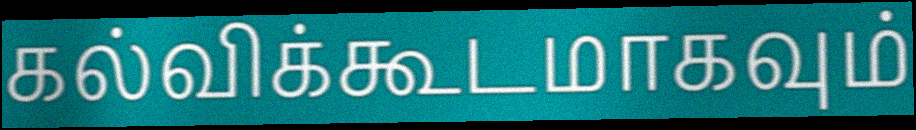
கல்விக்கூடமாகவும்